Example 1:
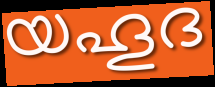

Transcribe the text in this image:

യഹൂദ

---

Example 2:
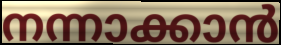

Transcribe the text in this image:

നന്നാക്കാൻ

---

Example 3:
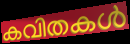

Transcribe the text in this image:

കവിതകൾ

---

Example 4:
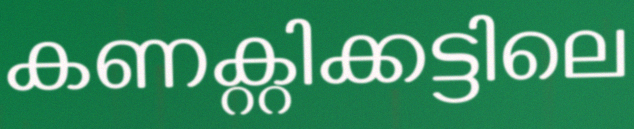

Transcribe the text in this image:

കണക്റ്റിക്കട്ടിലെ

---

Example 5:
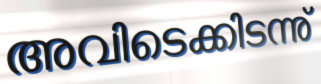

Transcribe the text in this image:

അവിടെക്കിടന്നു്